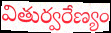
వితుర్వరేణ్యం